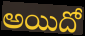
అయిదో